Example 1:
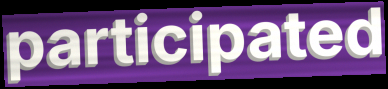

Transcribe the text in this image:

participated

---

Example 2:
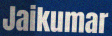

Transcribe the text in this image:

Jaikumar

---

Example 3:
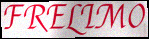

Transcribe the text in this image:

FRELIMO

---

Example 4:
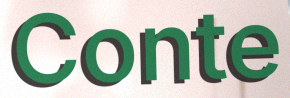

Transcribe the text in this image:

Conte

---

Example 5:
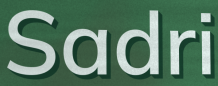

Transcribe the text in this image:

Sadri